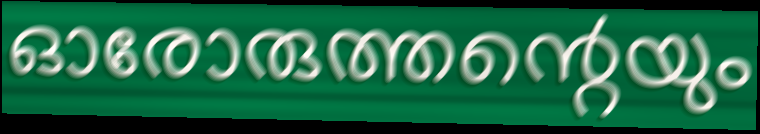
ഓരോരുത്തന്റെയും